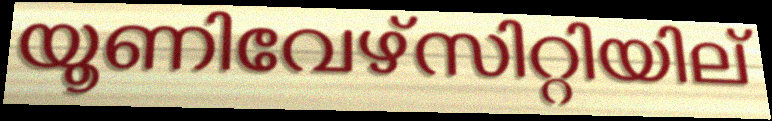
യൂണിവേഴ്സിറ്റിയില്